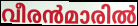
വീരൻമാരിൽ